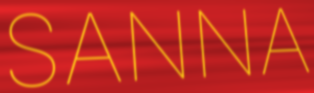
SANNA